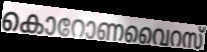
കൊറോണവൈറസ്